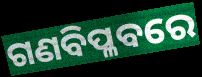
ଗଣବିପ୍ଳବରେ